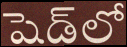
షెడ్‌లో